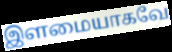
இளமையாகவே